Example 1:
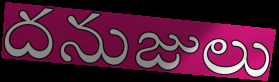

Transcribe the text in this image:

దనుజులు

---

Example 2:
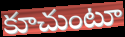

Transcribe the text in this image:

కూచుంటూ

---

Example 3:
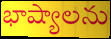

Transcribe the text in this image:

భాష్యాలను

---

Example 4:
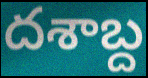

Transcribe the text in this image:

దశాబ్ద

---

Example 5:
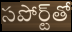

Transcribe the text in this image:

సపోర్ట్‌తో